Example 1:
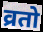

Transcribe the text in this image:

व्रतो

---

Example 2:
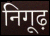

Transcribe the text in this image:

निगूढ़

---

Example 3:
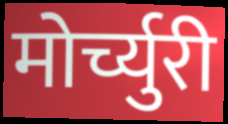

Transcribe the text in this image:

मोर्च्युरी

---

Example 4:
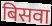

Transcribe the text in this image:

बिसवा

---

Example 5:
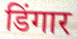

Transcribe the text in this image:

डिंगार